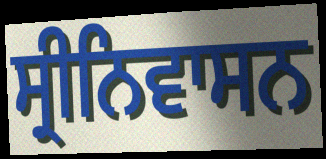
ਸ੍ਰੀਨਿਵਾਸਨ